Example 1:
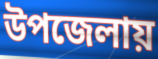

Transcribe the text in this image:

উপজেলায়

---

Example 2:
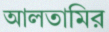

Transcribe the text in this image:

আলতামির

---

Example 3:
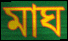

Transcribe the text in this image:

মাঘ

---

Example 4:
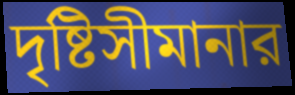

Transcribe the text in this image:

দৃষ্টিসীমানার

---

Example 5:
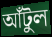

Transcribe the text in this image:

আঁটুল